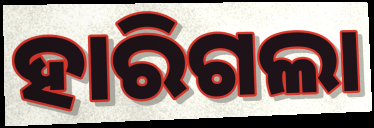
ହାରିଗଲା